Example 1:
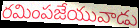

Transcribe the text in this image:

రమింపజేయువాడు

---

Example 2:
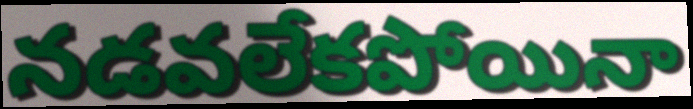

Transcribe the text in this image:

నడవలేకపోయినా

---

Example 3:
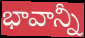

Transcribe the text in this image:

భావాన్నీ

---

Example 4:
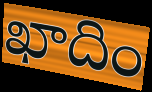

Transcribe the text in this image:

ఖాదిం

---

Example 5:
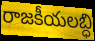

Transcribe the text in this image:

రాజకీయలబ్ధి